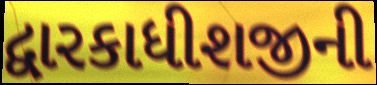
દ્વારકાધીશજીની